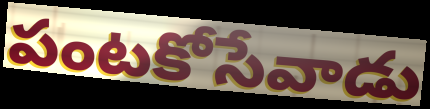
పంటకోసేవాడు